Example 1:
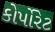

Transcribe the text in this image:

કોર્પોરેટ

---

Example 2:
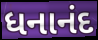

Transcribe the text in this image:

ધનાનંદ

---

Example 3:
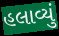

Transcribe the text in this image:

હલાવ્યું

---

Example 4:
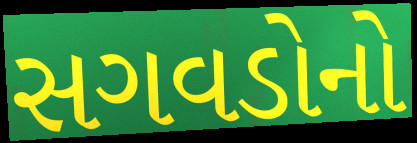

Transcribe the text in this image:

સગવડોનો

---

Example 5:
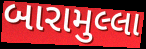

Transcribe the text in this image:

બારામુલ્લા